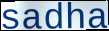
sadha